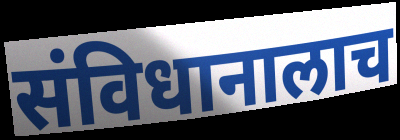
संविधानालाच